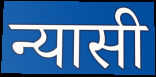
न्यासी